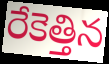
రేకెత్తిన